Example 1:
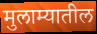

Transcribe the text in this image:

मुलाम्यातील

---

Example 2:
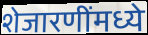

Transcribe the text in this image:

शेजारणींमध्ये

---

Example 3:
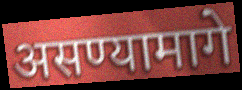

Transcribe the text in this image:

असण्यामागे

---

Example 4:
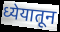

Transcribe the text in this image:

ध्येयातून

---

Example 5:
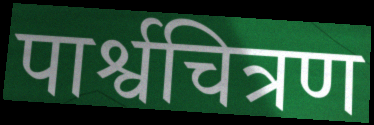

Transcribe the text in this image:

पार्श्वचित्रण